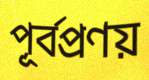
পূর্বপ্রণয়